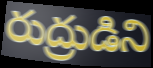
రుద్రుడిని